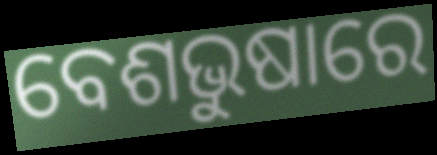
ବେଶଭୁଷାରେ